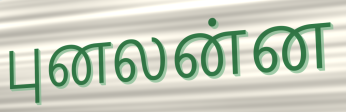
புனலன்ன